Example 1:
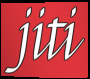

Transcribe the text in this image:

jiti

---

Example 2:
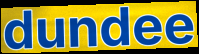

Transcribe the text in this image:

dundee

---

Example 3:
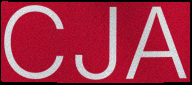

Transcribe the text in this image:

CJA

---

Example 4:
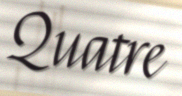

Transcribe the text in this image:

Quatre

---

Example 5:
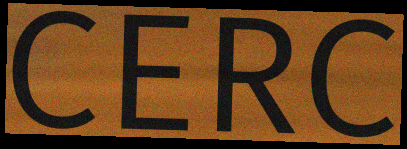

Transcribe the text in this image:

CERC